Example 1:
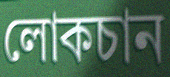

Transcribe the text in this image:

লোকচান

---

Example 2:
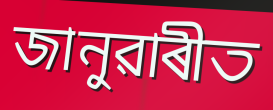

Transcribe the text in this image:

জানুৱাৰীত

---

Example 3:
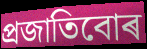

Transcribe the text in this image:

প্ৰজাতিবোৰ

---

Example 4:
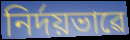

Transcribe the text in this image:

নিৰ্দয়ভাৱে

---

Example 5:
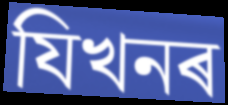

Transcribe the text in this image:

যিখনৰ